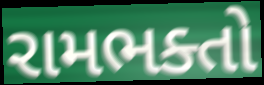
રામભક્તો